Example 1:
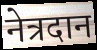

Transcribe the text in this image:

नेत्रदान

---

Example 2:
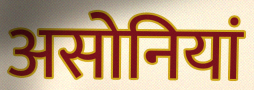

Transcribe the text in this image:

असोनियां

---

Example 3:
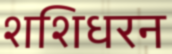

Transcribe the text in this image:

शशिधरन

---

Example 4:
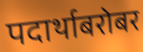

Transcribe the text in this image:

पदार्थाबरोबर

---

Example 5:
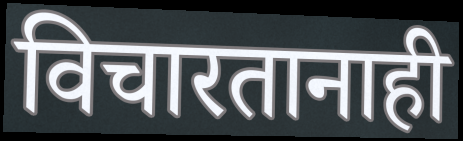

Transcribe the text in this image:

विचारतानाही